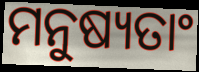
ମନୁଷ୍ୟତାଂ